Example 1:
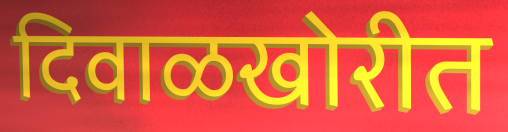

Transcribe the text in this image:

दिवाळखोरीत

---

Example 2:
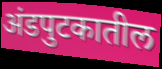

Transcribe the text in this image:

अंडपुटकातील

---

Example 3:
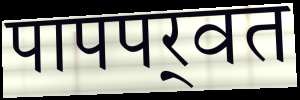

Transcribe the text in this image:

पापपर्वत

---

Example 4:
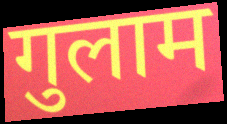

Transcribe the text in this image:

गुलाम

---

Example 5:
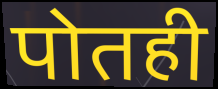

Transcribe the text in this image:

पोतही